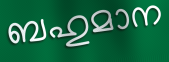
ബഹുമാന